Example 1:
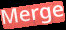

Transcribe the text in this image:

Merge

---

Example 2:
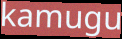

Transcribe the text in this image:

kamugu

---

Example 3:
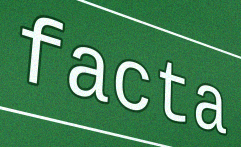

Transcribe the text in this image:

facta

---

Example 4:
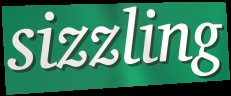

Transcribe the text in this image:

sizzling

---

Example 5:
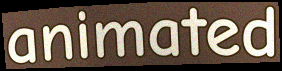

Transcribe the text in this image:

animated